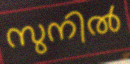
സുനിൽ